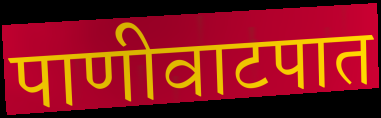
पाणीवाटपात